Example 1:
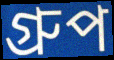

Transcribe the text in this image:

গ্রুপ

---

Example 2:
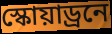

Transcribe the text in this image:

স্কোয়াড্রনে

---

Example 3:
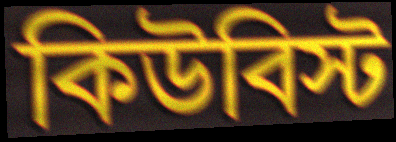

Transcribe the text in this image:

কিউবিস্ট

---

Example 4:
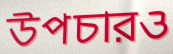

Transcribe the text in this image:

উপচারও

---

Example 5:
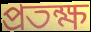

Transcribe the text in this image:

প্রতক্ষ